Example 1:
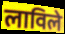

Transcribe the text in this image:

लाविले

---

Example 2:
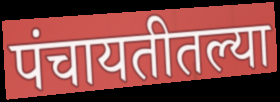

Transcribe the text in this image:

पंचायतीतल्या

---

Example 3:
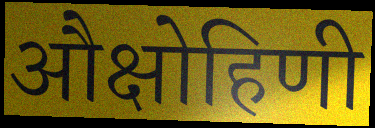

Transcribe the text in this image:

औक्षोहिणी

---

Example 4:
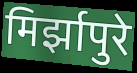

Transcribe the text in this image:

मिर्झापुरे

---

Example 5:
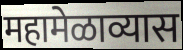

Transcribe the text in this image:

महामेळाव्यास